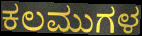
ಕಲಮುಗಳ